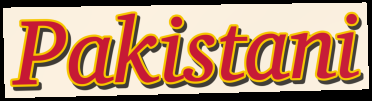
Pakistani